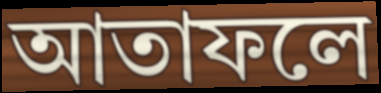
আতাফলে